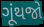
ગૂંથજો